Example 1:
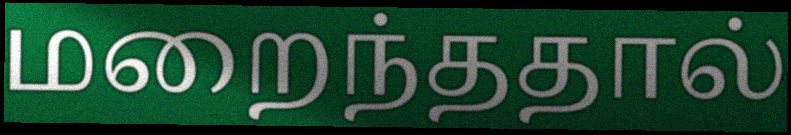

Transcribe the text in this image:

மறைந்ததால்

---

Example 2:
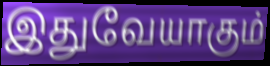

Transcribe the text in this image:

இதுவேயாகும்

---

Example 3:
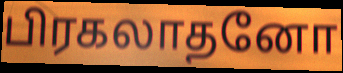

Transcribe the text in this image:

பிரகலாதனோ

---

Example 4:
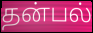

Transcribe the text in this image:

தன்பல்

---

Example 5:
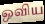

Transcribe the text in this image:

ஒவிய